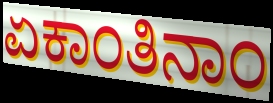
ಏಕಾಂತಿನಾಂ